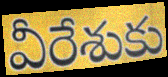
వీరేశుకు